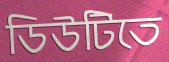
ডিউটিতে